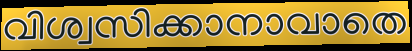
വിശ്വസിക്കാനാവാതെ